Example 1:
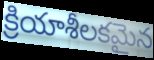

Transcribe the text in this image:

క్రియాశీలకమైన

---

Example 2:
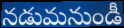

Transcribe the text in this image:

నడుమనుండీ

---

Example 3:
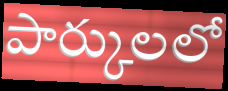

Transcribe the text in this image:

పార్కులలో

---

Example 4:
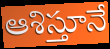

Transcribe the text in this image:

ఆశిస్తూనే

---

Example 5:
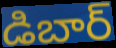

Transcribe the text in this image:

డిబార్